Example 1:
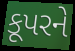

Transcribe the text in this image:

કૂપરને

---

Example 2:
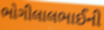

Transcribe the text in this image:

ભોગીલાલભાઈની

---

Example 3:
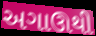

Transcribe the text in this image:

અગાઊથી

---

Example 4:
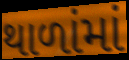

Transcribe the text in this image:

થાળાંમાં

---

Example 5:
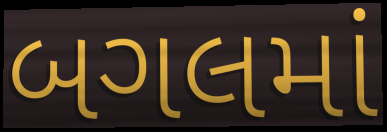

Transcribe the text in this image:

બગલમાં